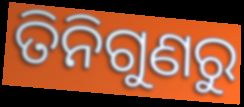
ତିନିଗୁଣରୁ